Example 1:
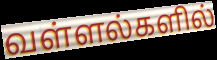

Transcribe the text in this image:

வள்ளல்களில்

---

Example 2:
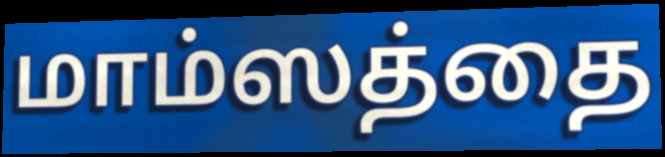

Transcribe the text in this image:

மாம்ஸத்தை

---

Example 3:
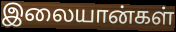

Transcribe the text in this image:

இலையான்கள்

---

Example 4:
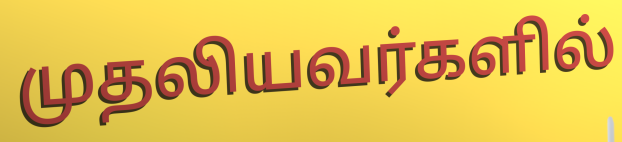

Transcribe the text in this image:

முதலியவர்களில்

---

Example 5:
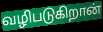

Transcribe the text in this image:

வழிபடுகிறான்